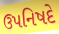
ઉપનિષદે